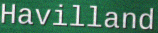
Havilland